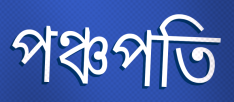
পঞ্চপতি